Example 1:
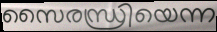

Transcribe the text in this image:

സൈരന്ധ്രിയെന്ന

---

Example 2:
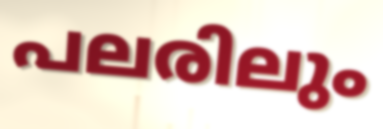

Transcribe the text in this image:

പലരിലും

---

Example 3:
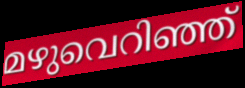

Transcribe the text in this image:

മഴുവെറിഞ്ഞ്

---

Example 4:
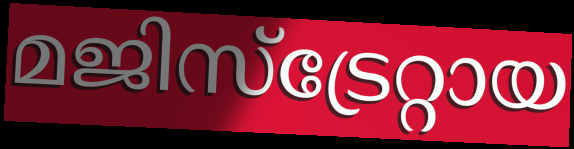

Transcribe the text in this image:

മജിസ്ട്രേറ്റായ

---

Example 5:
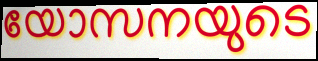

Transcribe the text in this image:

യോസനയുടെ